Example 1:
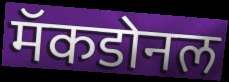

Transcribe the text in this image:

मॅकडोनल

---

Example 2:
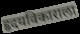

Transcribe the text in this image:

हृदयविकाराला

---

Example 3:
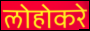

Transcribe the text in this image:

लोहोकरे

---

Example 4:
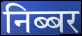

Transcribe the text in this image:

निब्बर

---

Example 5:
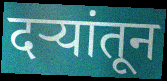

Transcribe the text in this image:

दऱ्यांतून